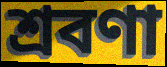
শ্রবণা